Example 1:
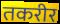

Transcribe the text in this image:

तकरीर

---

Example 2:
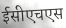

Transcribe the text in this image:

ईसीएचएस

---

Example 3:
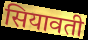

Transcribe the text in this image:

सियावती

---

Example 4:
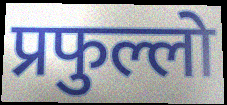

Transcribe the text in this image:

प्रफुल्लो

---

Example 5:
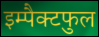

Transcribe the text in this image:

इम्पैक्टफुल